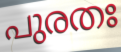
പുരതഃ